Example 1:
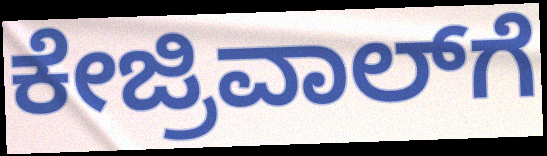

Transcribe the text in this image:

ಕೇಜ್ರಿವಾಲ್‍ಗೆ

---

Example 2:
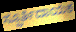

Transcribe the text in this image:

ಸ್ಫೂರ್ತಿದಾಯಕ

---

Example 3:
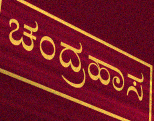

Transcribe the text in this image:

ಚಂದ್ರಹಾಸ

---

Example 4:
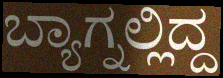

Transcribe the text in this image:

ಬ್ಯಾಗ್ನಲ್ಲಿದ್ದ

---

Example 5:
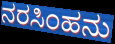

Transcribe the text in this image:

ನರಸಿಂಹನು